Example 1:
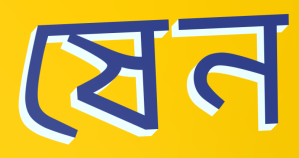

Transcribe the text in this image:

ষেন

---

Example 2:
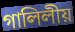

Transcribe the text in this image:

গালিলীয়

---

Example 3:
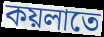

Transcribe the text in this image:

কয়লাতে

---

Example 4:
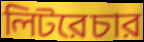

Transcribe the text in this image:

লিটরেচার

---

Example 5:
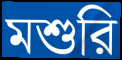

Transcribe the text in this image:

মশুরি